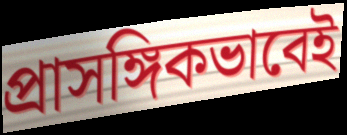
প্রাসঙ্গিকভাবেই